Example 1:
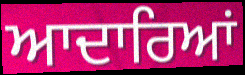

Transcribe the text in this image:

ਆਦਾਰਿਆਂ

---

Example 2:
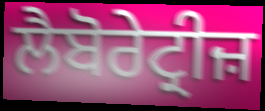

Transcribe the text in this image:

ਲੈਬੋਰੇਟ੍ਰੀਜ਼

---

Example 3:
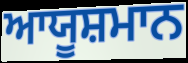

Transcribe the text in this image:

ਆਯੂਸ਼ਮਾਨ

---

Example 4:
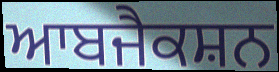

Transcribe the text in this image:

ਆਬਜੈਕਸ਼ਨ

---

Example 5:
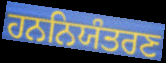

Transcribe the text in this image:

ਹਨਨਿਯੰਤਰਣ